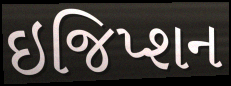
ઇજિપ્શન